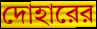
দোহারের